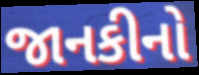
જાનકીનો